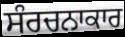
ਸੰਰਚਨਾਕਾਰ